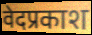
वेदप्रकाश